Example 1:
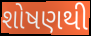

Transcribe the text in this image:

શોષણથી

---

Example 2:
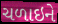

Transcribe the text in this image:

ચળાઇને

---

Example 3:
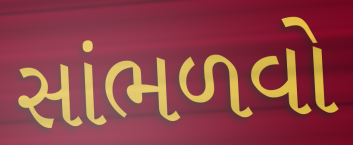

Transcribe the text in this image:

સાંભળવો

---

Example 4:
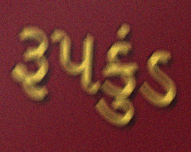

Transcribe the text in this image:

રૂપકુંડ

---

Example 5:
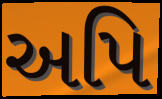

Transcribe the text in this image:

અપિ